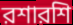
রশারশি